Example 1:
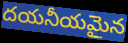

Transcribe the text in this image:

దయనీయమైన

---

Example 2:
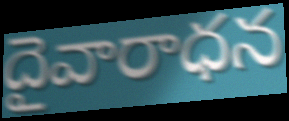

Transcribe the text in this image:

దైవారాధన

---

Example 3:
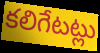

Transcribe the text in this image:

కలిగేటట్లు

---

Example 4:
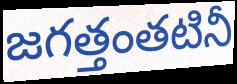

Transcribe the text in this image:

జగత్తంతటినీ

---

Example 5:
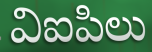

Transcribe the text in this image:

విఐపిలు